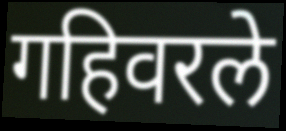
गहिवरले